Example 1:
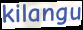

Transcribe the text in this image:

kilangu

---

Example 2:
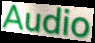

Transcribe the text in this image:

Audio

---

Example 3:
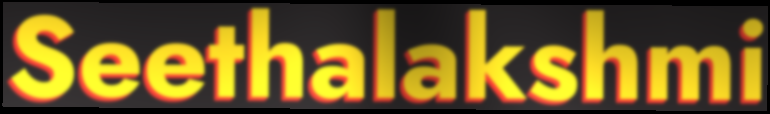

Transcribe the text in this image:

Seethalakshmi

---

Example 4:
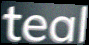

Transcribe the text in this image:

teal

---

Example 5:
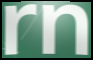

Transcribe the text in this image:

rn